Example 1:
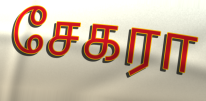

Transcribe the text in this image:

சேகரா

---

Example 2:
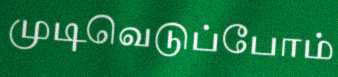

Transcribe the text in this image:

முடிவெடுப்போம்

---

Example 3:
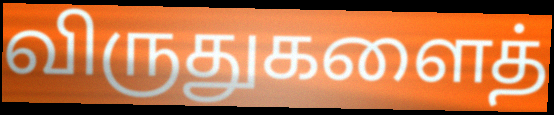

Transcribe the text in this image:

விருதுகளைத்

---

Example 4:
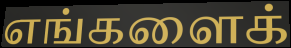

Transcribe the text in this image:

எங்களைக்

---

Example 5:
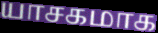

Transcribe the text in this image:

யாசகமாக